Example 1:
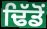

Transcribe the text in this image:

ਢਿੱਡੋਂ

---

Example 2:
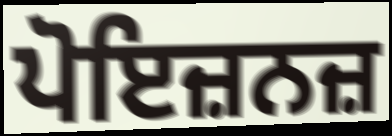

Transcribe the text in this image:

ਪੋਇਜ਼ਨਜ਼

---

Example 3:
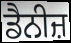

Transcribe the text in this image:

ਡੈਨੀਜ਼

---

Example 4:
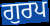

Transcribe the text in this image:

ਗੁਰਪ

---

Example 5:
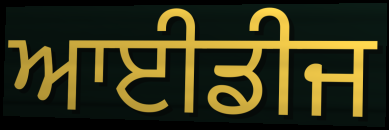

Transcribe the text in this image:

ਆਈਡੀਜ